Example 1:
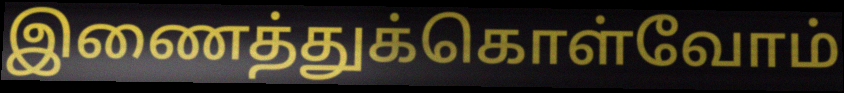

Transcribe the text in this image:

இணைத்துக்கொள்வோம்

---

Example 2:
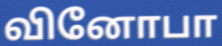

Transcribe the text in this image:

வினோபா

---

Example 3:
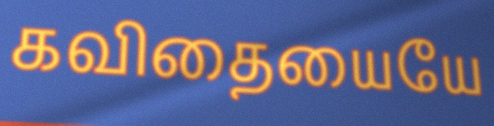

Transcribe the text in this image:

கவிதையையே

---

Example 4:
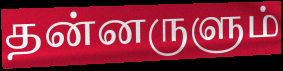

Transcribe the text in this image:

தன்னருளும்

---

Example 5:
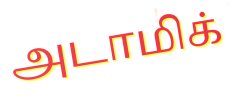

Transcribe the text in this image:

அடாமிக்